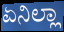
ಏನಿಲ್ಲಾ